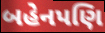
બહેનપણિ